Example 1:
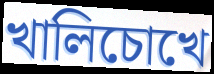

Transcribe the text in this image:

খালিচোখে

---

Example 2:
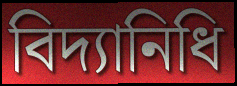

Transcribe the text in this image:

বিদ্যানিধি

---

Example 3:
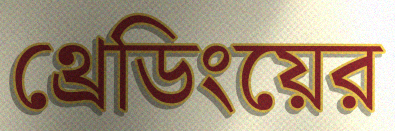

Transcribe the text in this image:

থ্রেডিংয়ের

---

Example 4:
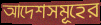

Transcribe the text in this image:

আদেশসমূহের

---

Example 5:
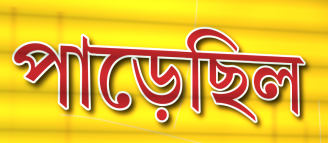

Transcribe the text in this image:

পাড়েছিল